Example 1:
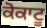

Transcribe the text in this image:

ਕੋਕਾਟੂ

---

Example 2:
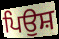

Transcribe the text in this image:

ਪਿਉਸ਼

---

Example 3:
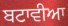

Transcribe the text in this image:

ਬਟਾਵੀਆ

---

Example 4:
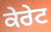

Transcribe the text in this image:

ਕੇਰੇਟ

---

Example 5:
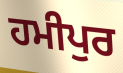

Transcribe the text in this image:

ਹਮੀਪੁਰ